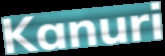
Kanuri